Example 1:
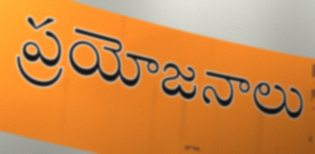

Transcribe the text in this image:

ప్రయోజనాలు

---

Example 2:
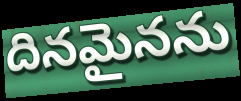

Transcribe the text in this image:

దినమైనను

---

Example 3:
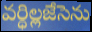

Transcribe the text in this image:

వర్ధిల్లజేసెను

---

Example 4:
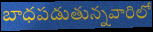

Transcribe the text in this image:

బాధపడుతున్నవారిలో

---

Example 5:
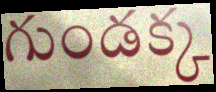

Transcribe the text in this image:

గుండక్క